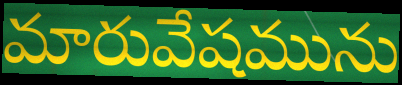
మారువేషమును